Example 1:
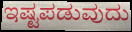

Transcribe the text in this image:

ಇಷ್ಟಪಡುವುದು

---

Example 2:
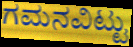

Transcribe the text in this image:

ಗಮನವಿಟ್ಟು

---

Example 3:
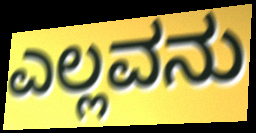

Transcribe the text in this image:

ಎಲ್ಲವನು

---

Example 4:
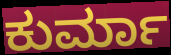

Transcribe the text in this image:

ಕುರ್ಮಾ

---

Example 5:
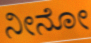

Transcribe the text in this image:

ನೀನೋ